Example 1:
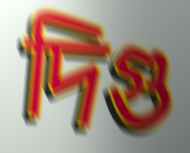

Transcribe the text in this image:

দিগু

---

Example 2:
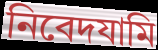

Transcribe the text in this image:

নিবেদযামি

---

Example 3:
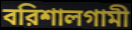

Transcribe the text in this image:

বরিশালগামী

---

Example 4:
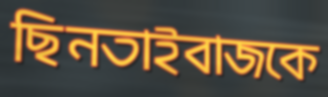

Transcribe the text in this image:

ছিনতাইবাজকে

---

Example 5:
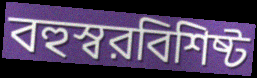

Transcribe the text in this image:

বহুস্বরবিশিষ্ট